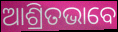
ଆଶ୍ରିତଭାବେ